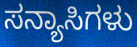
ಸನ್ಯಾಸಿಗಳು